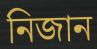
নিজান